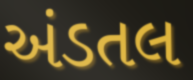
અંડતલ